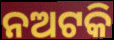
ନଅଟକି